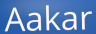
Aakar